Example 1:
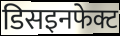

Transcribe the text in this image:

डिसइनफेक्ट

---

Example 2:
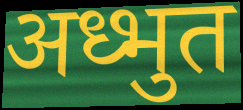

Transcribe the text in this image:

अध्भुत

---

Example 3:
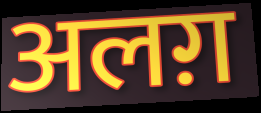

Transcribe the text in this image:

अलग़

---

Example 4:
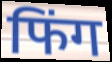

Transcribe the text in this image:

फिंग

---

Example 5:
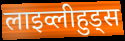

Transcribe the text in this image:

लाइव्लीहुड्स